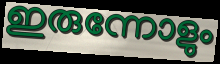
ഇരുന്നോളും